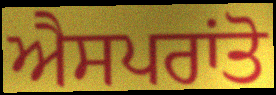
ਐਸਪਰਾਂਤੋ